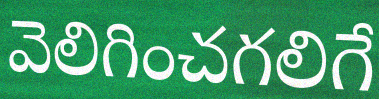
వెలిగించగలిగే